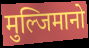
मुल्जिमानो